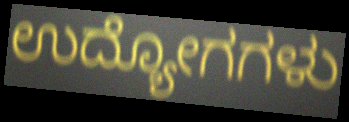
ಉದ್ಯೋಗಗಳು